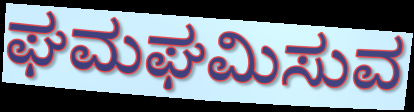
ಘಮಘಮಿಸುವ